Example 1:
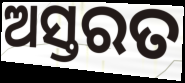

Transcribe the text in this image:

ଅସ୍ତରତ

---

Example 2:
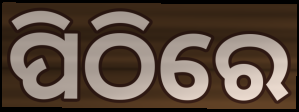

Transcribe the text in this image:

ପିଠିରେ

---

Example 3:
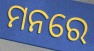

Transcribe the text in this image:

ମନରେ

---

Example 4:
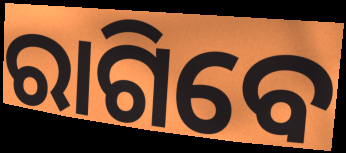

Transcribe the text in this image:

ରାଗିବେ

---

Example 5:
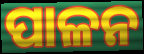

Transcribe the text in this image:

ପାଳନ